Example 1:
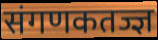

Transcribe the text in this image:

संगणकतज्ज्ञ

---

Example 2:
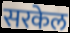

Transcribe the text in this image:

सरकेल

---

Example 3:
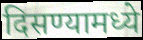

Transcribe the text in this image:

दिसण्यामध्ये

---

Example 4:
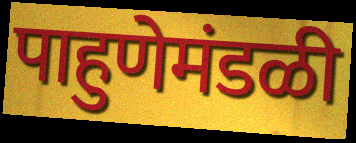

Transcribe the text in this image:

पाहुणेमंडळी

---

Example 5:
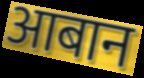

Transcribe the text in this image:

आबान